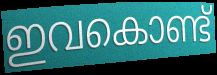
ഇവകൊണ്ട്